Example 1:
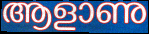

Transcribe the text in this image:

ആളാണു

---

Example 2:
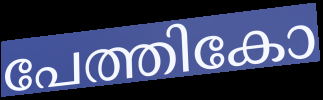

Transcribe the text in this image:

പേത്തികോ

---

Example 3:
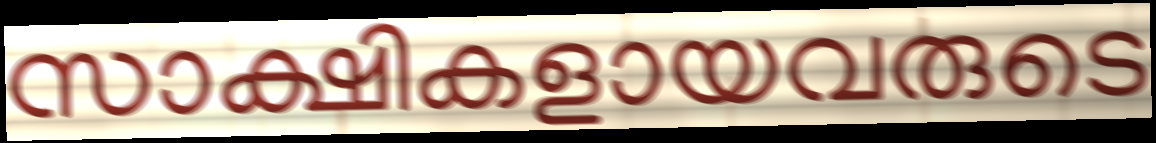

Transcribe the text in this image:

സാക്ഷികളായവരുടെ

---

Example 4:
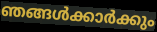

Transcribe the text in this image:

ഞങ്ങൾക്കാർക്കും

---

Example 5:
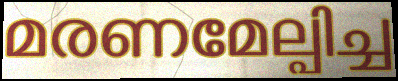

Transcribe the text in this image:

മരണമേല്പിച്ച